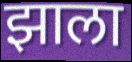
झाला